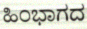
ಹಿಂಭಾಗದ